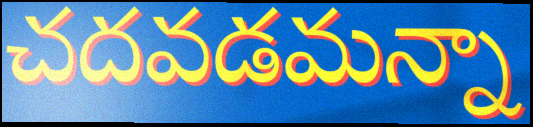
చదవడమన్నా